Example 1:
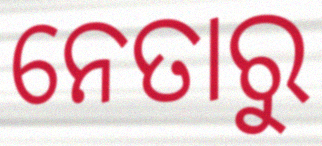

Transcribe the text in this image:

ନେତାରୁ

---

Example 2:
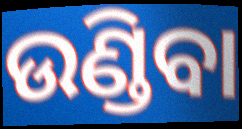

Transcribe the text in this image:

ଉଣ୍ଡିବା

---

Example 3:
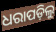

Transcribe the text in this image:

ଧରାପଡ଼ିଲୁ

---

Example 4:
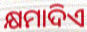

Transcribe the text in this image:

କ୍ଷମାଦିଏ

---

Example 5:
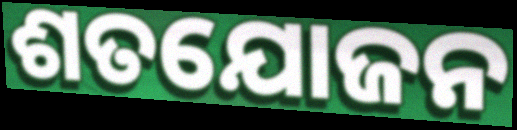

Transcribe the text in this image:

ଶତଯୋଜନ